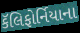
કૅલિફોર્નિયાના